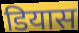
डियास